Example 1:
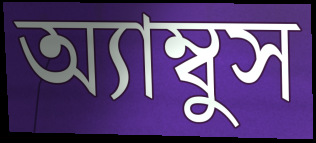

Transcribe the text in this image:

অ্যাম্বুস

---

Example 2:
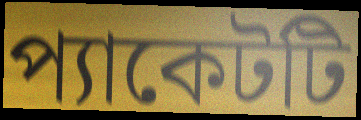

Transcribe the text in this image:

প্যাকেটটি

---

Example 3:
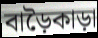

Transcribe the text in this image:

বাড়ৈকাড়া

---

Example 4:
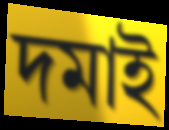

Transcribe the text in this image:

দমাই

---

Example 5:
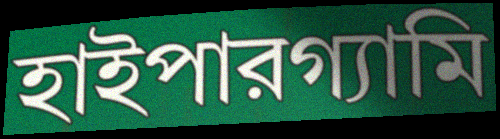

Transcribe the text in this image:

হাইপারগ্যামি